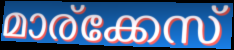
മാര്ക്കേസ്